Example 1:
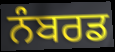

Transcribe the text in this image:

ਨੰਬਰਡ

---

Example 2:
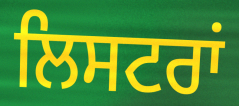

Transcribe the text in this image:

ਲਿਸਟਰਾਂ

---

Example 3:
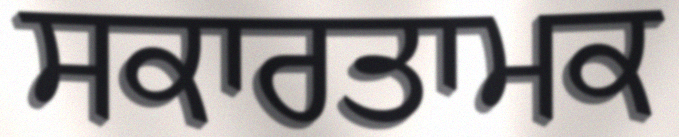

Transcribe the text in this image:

ਸਕਾਰਤਾਮਕ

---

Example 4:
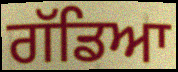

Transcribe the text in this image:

ਗੱਡਿਆ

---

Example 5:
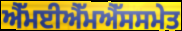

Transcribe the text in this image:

ਐੱਮਈਐੱਮਐੱਸਸਮੇਤ